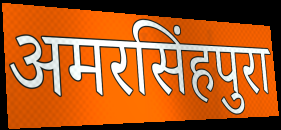
अमरसिंहपुरा